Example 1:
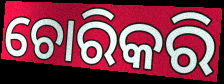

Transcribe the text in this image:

ଚୋରିକରି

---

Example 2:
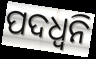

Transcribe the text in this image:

ପଦଧ୍ୱନି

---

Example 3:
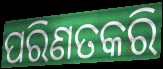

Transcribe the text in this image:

ପରିଣତକରି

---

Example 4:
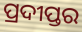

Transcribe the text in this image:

ପ୍ରଦୀପ୍ତର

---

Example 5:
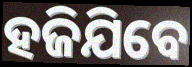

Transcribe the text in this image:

ହଜିଯିବେ